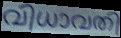
വിധാവതി